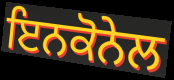
ਇਨਕੋਨੇਲ